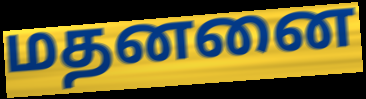
மதனனை